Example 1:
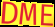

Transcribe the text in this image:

DME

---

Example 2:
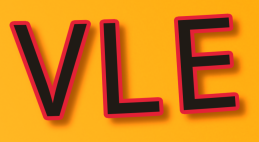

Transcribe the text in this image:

VLE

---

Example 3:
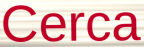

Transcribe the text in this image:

Cerca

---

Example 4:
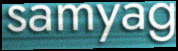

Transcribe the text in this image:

samyag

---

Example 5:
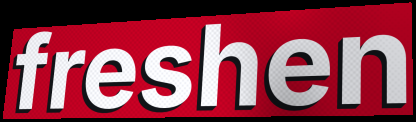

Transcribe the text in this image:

freshen